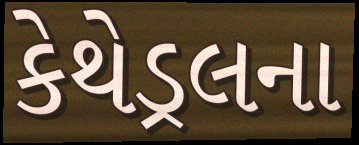
કેથેડ્રલના